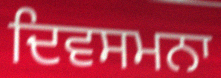
ਦਿਵਸਮਨਾ